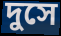
দুসে